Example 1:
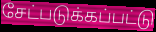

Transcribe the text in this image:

சேட்படுக்கப்பட்டு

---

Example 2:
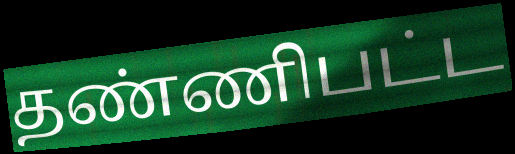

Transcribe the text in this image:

தண்ணிபட்ட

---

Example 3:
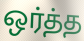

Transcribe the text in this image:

ஒர்த்த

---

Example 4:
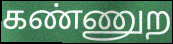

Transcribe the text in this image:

கண்ணுற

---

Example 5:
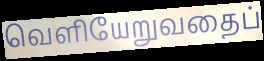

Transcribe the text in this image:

வெளியேறுவதைப்